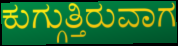
ಕುಗ್ಗುತ್ತಿರುವಾಗ